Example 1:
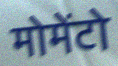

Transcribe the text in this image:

मोमेंटो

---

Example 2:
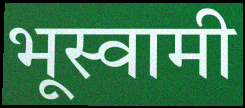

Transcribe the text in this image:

भूस्‍वामी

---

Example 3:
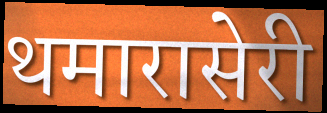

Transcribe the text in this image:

थमारासेरी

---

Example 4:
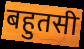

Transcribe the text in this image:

बहुतसी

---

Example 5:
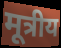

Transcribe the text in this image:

मूत्रीय